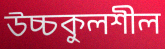
উচ্চকুলশীল